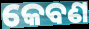
କେବଣ